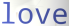
love